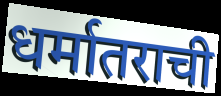
धर्मातराची